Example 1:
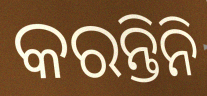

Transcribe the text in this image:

କରନ୍ତିନି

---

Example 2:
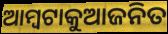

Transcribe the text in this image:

ଆମ୍ବଟାକୁଆଜନିତ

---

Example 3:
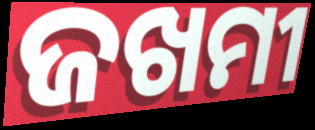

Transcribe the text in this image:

ଜଖମୀ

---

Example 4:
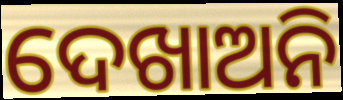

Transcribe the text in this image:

ଦେଖାଅନି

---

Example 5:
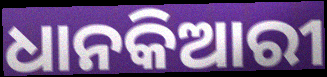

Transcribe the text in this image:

ଧାନକିଆରୀ